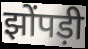
झोंपड़ी